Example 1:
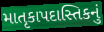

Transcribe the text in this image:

માતૃકાપદાસ્તિકનું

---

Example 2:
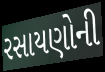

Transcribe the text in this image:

રસાયણોની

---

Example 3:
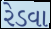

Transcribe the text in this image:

રેડવા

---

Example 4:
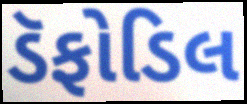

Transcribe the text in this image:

ડૅફોડિલ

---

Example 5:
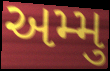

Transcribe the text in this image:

અમ્મુ